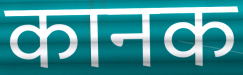
कानक